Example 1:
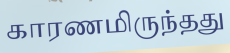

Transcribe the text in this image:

காரணமிருந்தது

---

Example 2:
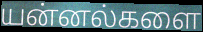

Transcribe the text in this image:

யன்னல்களை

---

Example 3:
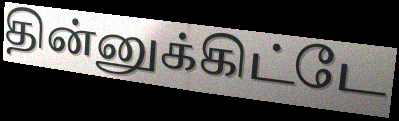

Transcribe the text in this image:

தின்னுக்கிட்டே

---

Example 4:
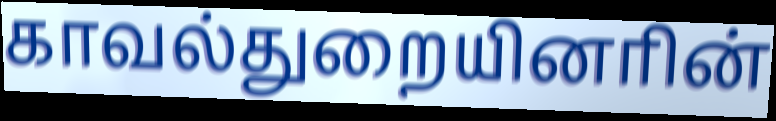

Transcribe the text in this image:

காவல்துறையினரின்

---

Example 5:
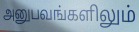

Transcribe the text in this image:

அனுபவங்களிலும்